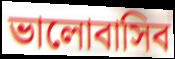
ভালোবাসিব